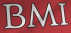
BMI